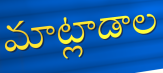
మాట్లాడాల